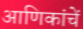
आणिकांचें